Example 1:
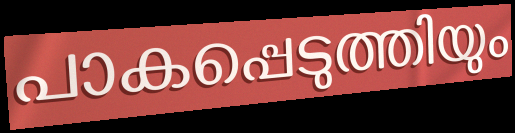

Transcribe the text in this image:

പാകപ്പെടുത്തിയും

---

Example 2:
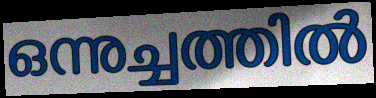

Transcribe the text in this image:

ഒന്നുച്ചത്തിൽ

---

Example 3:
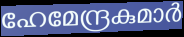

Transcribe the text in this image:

ഹേമേന്ദ്രകുമാർ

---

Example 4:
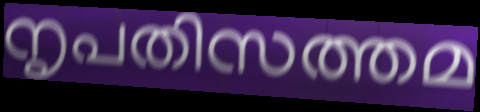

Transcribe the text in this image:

നൃപതിസത്തമ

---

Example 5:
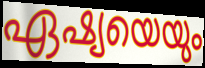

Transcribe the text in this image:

ഏഷ്യയെയും